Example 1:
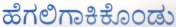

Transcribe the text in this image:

ಹೆಗಲಿಗಾಕಿಕೊಂಡು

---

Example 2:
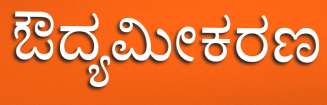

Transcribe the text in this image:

ಔದ್ಯಮೀಕರಣ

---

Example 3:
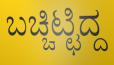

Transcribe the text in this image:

ಬಚ್ಚಿಟ್ಟಿದ್ದ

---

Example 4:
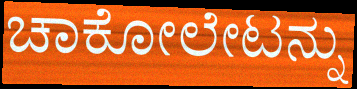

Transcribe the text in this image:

ಚಾಕೋಲೇಟನ್ನು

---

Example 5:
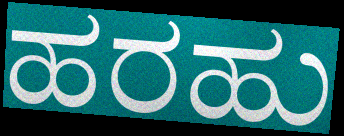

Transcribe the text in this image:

ಹರಹು